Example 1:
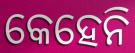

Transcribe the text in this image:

କେହେନି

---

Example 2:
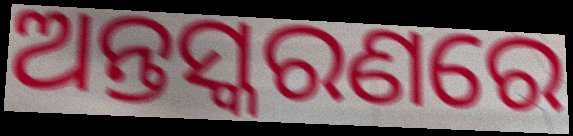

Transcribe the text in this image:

ଅନ୍ତସ୍କରଣରେ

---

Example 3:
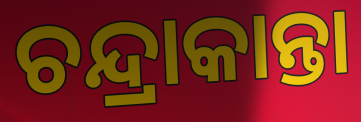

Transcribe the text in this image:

ଚନ୍ଦ୍ରାକାନ୍ତା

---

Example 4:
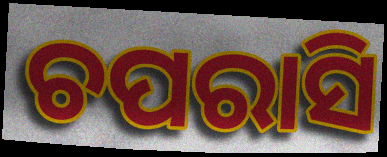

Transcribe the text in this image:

ଚପରାସି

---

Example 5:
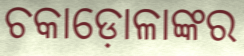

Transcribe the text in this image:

ଚକାଡ଼ୋଳାଙ୍କର